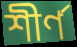
শীর্ণ